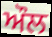
ਔਲ